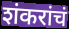
शंकरांचं